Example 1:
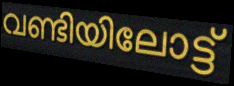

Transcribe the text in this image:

വണ്ടിയിലോട്ട്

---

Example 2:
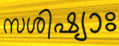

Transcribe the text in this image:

സശിഷ്യാഃ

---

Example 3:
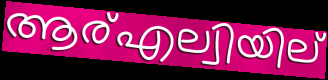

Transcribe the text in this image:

ആര്എല്വിയില്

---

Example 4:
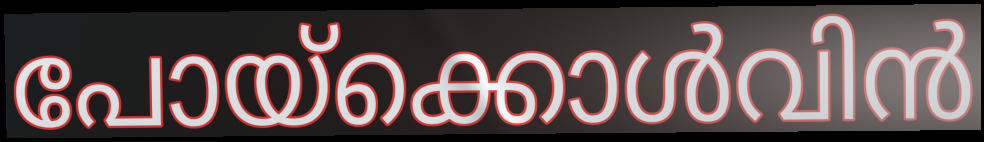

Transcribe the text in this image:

പോയ്ക്കൊൾവിൻ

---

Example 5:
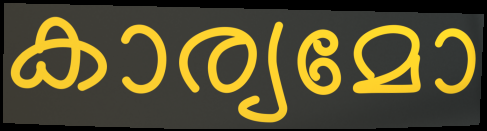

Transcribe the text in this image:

കാര്യമോ